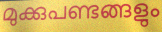
മുക്കുപണ്ടങ്ങളും